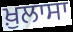
ਖ਼ੁਲਾਸਾ